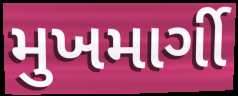
મુખમાર્ગી